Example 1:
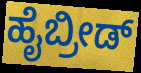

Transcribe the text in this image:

ಹೈಬ್ರೀಡ್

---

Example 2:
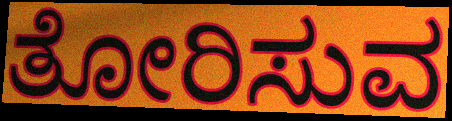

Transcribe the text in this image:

ತೋರಿಸುವ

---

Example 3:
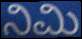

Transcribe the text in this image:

ನಿಮಿ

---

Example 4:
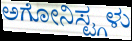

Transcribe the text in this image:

ಅಗೋನಿಸ್ಟ್ಗಳು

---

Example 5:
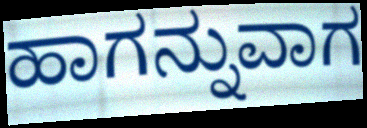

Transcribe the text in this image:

ಹಾಗನ್ನುವಾಗ